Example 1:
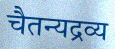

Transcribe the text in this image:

चैतन्यद्रव्य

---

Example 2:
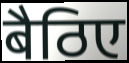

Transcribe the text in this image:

बैठिए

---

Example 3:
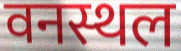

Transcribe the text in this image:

वनस्थल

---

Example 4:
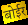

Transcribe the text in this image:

बोईर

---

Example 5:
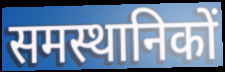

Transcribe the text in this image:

समस्थानिकों